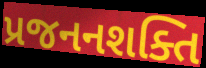
પ્રજનનશક્તિ